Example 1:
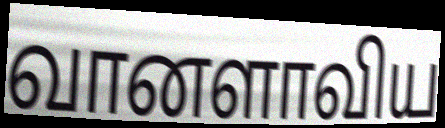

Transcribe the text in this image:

வானளாவிய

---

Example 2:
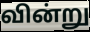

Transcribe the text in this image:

வின்று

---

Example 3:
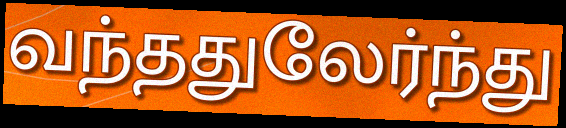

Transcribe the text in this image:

வந்ததுலேர்ந்து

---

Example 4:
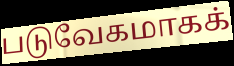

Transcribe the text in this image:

படுவேகமாகக்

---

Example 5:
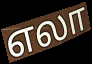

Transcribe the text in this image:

எலா